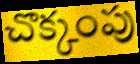
చొక్కంపు